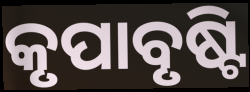
କୃପାବୃଷ୍ଟି